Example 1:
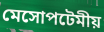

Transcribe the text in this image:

মেসোপটেমীয়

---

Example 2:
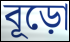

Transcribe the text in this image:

বূড়ো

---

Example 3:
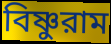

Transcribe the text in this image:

বিষ্ণুরাম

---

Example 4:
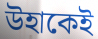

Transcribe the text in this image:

উহাকেই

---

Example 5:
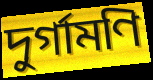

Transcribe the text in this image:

দুর্গামণি